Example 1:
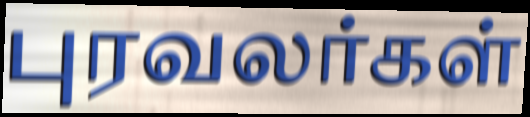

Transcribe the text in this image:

புரவலர்கள்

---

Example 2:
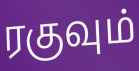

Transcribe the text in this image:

ரகுவும்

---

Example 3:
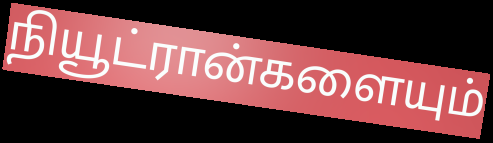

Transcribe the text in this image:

நியூட்ரான்களையும்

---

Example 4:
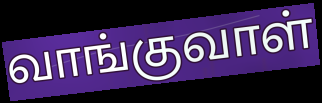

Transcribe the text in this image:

வாங்குவாள்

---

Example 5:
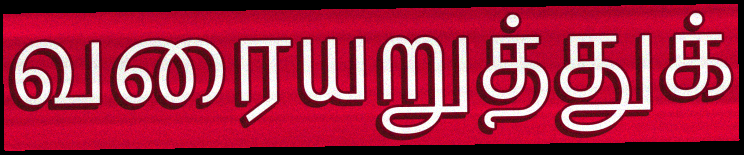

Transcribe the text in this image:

வரையறுத்துக்